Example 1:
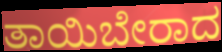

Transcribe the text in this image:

ತಾಯಿಬೇರಾದ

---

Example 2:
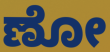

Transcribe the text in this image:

ಣೋ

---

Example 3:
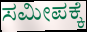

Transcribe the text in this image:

ಸಮೀಪಕ್ಕೆ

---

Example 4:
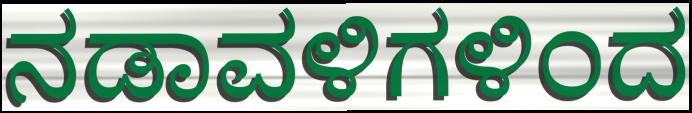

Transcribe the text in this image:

ನಡಾವಳಿಗಳಿಂದ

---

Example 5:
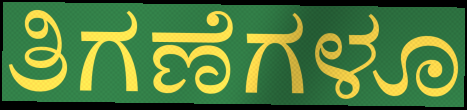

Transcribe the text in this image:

ತಿಗಣೆಗಳೂ